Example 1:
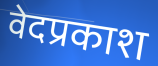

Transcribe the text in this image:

वेदप्रकाश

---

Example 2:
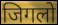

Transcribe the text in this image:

जिगलो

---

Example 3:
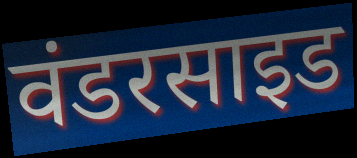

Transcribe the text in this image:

वंडरसाइड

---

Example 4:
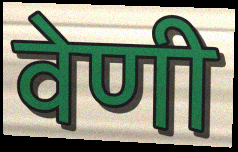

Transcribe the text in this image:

वेणी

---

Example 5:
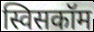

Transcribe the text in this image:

स्विसकॉम